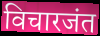
विचारजंत